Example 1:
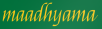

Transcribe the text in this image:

maadhyama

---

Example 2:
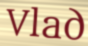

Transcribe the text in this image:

Vlad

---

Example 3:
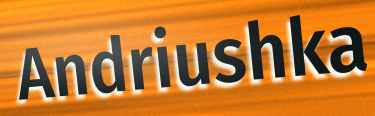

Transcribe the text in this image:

Andriushka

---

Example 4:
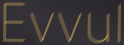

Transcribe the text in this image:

Evvul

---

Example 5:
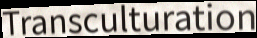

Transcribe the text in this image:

Transculturation